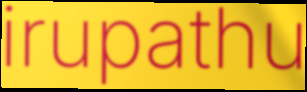
irupathu